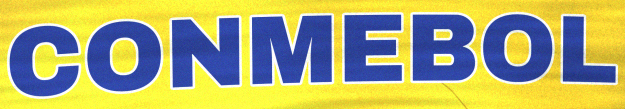
CONMEBOL